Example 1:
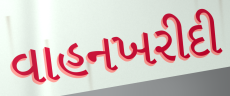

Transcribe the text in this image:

વાહનખરીદી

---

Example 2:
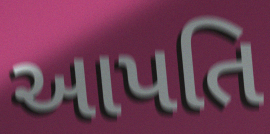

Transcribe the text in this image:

આપતિ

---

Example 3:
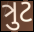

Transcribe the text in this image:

ત્રુટ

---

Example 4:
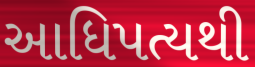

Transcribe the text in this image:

આધિપત્યથી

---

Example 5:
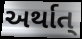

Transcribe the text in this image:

અર્થાત્